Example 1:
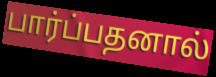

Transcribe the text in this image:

பார்ப்பதனால்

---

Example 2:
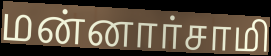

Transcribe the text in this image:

மன்னார்சாமி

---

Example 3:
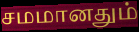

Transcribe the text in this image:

சமமானதும்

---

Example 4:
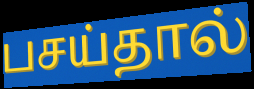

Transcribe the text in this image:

பசய்தால்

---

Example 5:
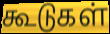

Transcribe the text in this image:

கூடுகள்